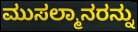
ಮುಸಲ್ಮಾನರನ್ನು